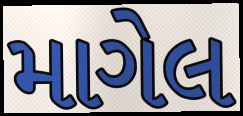
માગેલ